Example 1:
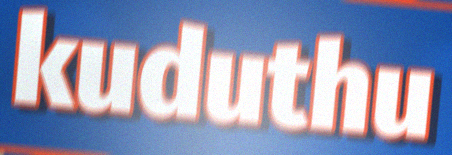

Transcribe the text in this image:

kuduthu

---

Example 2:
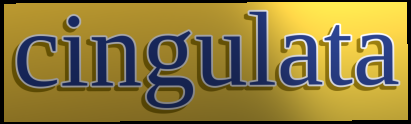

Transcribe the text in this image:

cingulata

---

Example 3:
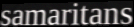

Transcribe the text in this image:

samaritans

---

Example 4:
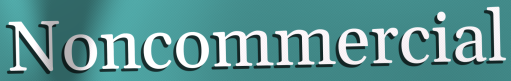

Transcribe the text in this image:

Noncommercial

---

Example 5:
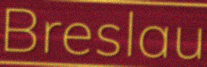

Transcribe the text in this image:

Breslau